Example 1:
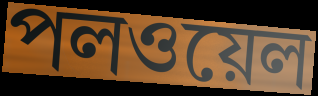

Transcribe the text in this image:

পলওয়েল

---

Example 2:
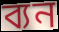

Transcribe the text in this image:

ব্যন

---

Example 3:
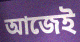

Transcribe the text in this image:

আজেই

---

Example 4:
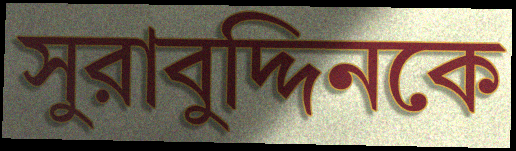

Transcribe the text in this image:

সুরাবুদ্দিনকে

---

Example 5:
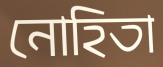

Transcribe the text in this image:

নোহিতা